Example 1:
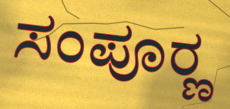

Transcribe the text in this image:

ಸಂಪೂರ್‍ಣ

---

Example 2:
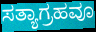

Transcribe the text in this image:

ಸತ್ಯಾಗ್ರಹವೂ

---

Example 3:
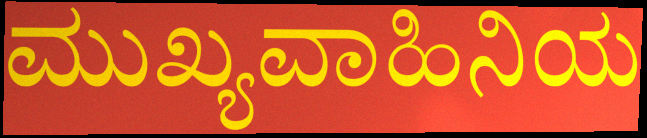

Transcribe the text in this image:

ಮುಖ್ಯವಾಹಿನಿಯ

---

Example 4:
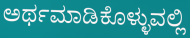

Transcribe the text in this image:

ಅರ್ಥಮಾಡಿಕೊಳ್ಳುವಲ್ಲಿ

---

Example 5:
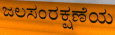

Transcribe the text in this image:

ಜಲಸಂರಕ್ಷಣೆಯ